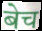
बेच